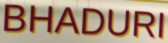
BHADURI